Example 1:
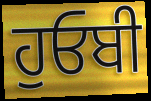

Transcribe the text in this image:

ਹੁਓਬੀ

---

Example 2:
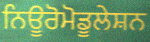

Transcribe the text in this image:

ਨਿਊਰੋਮੋਡੂਲੇਸ਼ਨ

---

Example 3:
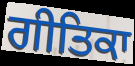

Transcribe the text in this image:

ਗੀਤਿਕਾ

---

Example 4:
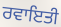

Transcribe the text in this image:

ਰਵਾਇਤੀ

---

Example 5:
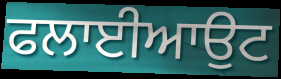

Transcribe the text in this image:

ਫਲਾਈਆਉਟ